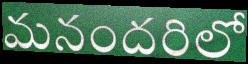
మనందరిలో